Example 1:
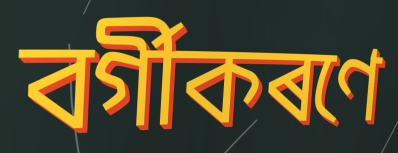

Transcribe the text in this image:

বৰ্গীকৰণে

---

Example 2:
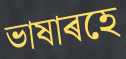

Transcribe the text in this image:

ভাষাৰহে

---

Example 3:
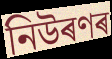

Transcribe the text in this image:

নিউৰণৰ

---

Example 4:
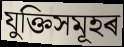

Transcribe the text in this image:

যুক্তিসমূহৰ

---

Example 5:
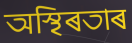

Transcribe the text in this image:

অস্থিৰতাৰ